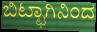
ಬಿಟ್ಟಾಗಿನಿಂದ